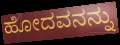
ಹೋದವನನ್ನು